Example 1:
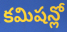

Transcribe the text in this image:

కమిషన్లో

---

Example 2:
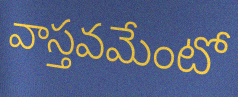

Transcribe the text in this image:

వాస్తవమేంటో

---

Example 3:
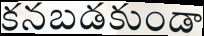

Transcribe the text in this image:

కనబడకుండా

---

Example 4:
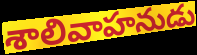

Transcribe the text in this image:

శాలివాహనుడు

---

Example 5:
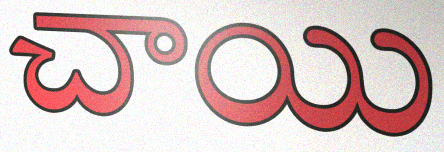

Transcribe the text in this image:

చాయి